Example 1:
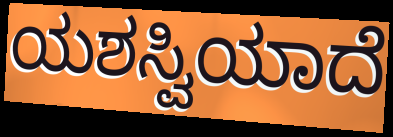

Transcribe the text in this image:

ಯಶಸ್ವಿಯಾದೆ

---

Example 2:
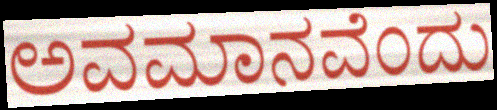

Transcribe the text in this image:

ಅವಮಾನವೆಂದು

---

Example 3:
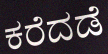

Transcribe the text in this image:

ಕರೆದಡೆ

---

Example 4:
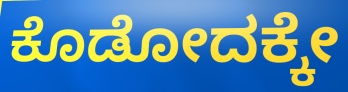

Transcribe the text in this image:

ಕೊಡೋದಕ್ಕೇ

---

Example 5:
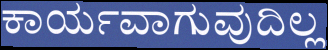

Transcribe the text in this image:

ಕಾರ್ಯವಾಗುವುದಿಲ್ಲ